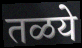
तळये